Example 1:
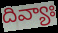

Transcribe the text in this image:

దివ్యాః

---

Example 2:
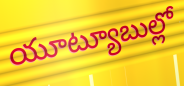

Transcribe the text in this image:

యూట్యూబుల్లో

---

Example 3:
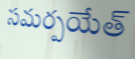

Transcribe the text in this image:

సమర్పయేత్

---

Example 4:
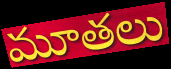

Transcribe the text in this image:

మూతలు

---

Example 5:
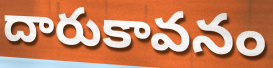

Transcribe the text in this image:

దారుకావనం